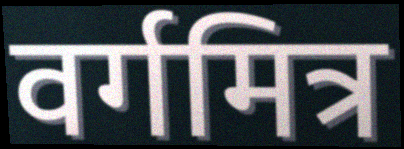
वर्गमित्र